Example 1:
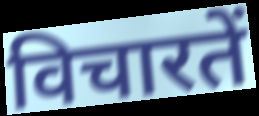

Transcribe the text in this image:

विचारतें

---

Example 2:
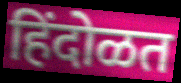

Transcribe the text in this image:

हिंदोळत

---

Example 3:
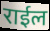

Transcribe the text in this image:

राईल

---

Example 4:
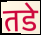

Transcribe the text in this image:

तडे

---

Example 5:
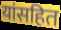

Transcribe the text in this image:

यांसहित